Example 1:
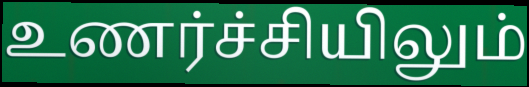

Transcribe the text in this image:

உணர்ச்சியிலும்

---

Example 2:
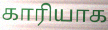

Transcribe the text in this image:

காரியாக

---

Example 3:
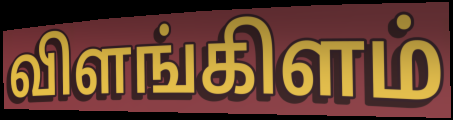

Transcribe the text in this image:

விளங்கிளம்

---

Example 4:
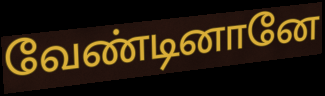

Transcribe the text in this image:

வேண்டினானே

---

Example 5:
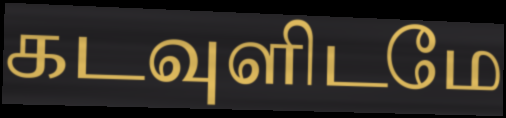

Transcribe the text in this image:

கடவுளிடமே